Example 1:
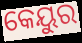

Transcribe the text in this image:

କେୟୁର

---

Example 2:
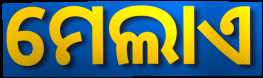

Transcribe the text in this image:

ମେଲାଏ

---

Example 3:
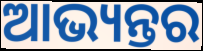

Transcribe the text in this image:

ଆଭ୍ୟନ୍ତର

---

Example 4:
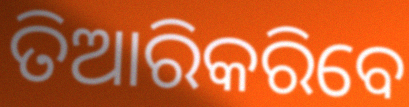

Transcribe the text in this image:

ତିଆରିକରିବେ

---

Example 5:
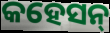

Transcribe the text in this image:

କହେସନ୍